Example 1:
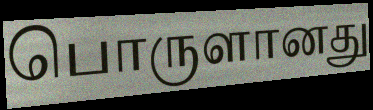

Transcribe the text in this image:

பொருளானது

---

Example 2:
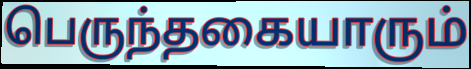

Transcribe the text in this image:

பெருந்தகையாரும்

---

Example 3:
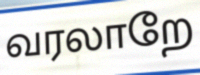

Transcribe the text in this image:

வரலாறே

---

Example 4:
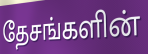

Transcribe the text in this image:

தேசங்களின்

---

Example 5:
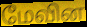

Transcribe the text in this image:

மேவின